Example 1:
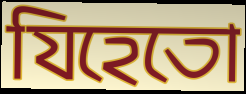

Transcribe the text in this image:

যিহেতো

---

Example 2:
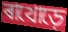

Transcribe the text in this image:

ৰাথোড়ে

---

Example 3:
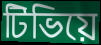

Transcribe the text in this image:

টিভিয়ে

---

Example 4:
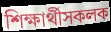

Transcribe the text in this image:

শিক্ষাৰ্থীসকলক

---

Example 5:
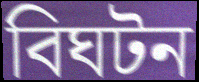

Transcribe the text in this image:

বিঘটন